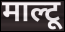
माल्टू